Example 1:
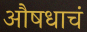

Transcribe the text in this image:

औषधाचं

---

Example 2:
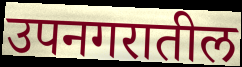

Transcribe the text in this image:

उपनगरातील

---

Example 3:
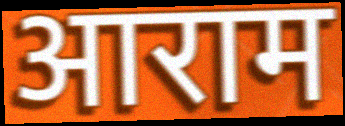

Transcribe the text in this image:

आराम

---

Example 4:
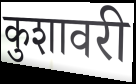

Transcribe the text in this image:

कुशावरी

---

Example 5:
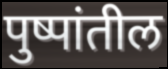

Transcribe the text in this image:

पुष्पांतील